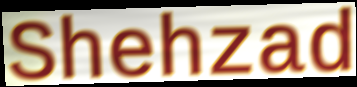
Shehzad